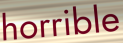
horrible